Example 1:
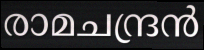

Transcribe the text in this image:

രാമചന്ദ്രൻ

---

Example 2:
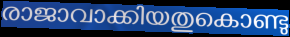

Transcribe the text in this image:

രാജാവാക്കിയതുകൊണ്ടു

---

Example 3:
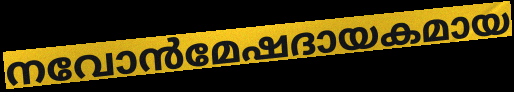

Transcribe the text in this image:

നവോൻമേഷദായകമായ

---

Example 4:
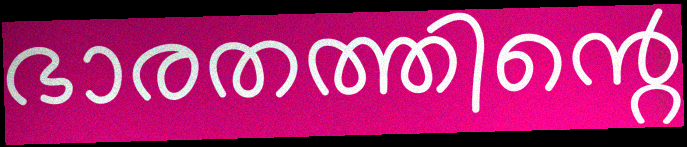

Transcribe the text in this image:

ഭാരതത്തിന്റെ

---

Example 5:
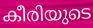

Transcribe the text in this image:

കീരിയുടെ